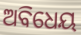
ଅବିଧେୟ